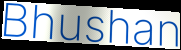
Bhushan